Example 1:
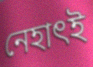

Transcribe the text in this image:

নেহাৎই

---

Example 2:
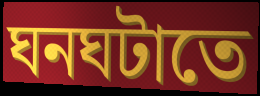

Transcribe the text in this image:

ঘনঘটাতে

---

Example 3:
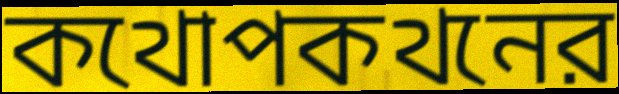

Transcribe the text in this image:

কথোপকথনের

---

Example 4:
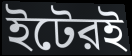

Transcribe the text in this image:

ইটেরই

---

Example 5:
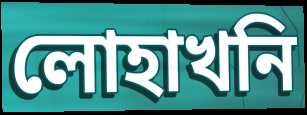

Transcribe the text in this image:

লোহাখনি